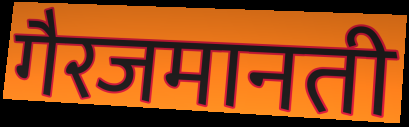
गैरजमानती